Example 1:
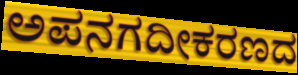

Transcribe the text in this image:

ಅಪನಗದೀಕರಣದ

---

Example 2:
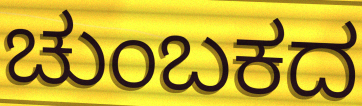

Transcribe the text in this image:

ಚುಂಬಕದ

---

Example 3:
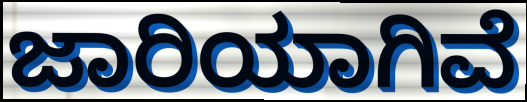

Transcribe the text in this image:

ಜಾರಿಯಾಗಿವೆ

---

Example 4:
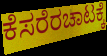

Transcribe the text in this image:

ಕೆಸರೆರಚಾಟಕ್ಕೆ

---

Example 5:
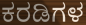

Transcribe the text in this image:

ಕರಡಿಗಳ